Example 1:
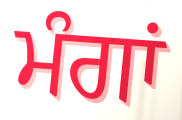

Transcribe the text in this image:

ਮੰਗਾਂ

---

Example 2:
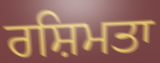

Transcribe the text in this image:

ਰਸ਼ਿਮਤਾ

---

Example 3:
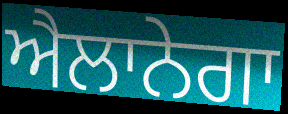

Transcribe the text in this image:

ਐਲਾਨੇਗਾ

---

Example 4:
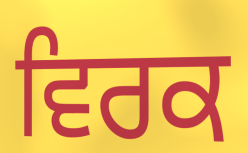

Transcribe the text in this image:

ਵਿਰਕ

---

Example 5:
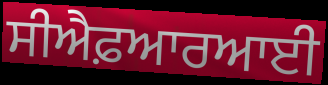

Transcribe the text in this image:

ਸੀਐਫ਼ਆਰਆਈ